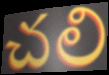
చలి